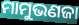
ମାମୁଭଣଜା